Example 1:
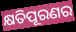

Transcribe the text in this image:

କ୍ଷତିପୂରଣର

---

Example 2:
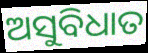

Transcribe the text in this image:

ଅସୁବିଧାତ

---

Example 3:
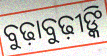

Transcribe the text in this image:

ବୁଢ଼ାବୁଢ଼ୀଙ୍କି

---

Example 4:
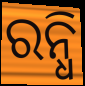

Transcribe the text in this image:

ରନ୍ଧି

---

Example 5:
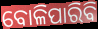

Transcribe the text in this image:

ବୋଳିପାରିବି